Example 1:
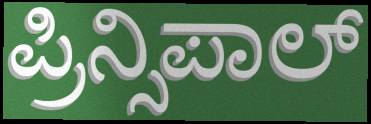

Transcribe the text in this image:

ಪ್ರಿನ್ಸಿಪಾಲ್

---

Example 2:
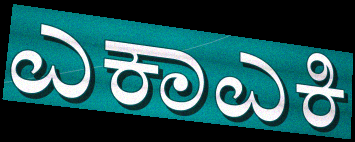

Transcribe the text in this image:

ಎಕಾಎಕಿ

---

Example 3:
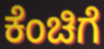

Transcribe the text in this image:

ಕೆಂಚಿಗೆ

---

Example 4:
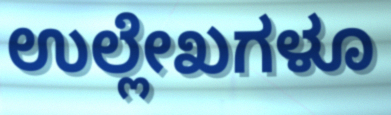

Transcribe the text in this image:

ಉಲ್ಲೇಖಗಳೂ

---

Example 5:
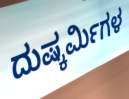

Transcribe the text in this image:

ದುಷ್ಕರ್ಮಿಗಳ